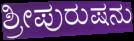
ಶ್ರೀಪುರುಷನು